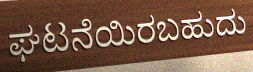
ಘಟನೆಯಿರಬಹುದು